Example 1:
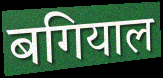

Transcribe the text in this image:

बगियाल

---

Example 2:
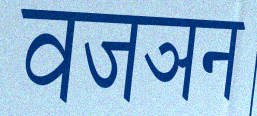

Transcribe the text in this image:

वजञन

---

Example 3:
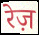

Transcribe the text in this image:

रेज़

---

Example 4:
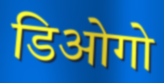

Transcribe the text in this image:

डिओगो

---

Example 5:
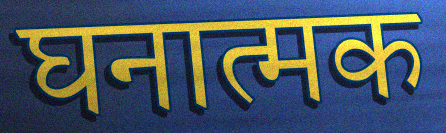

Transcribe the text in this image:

घनात्मक